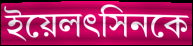
ইয়েলৎসিনকে